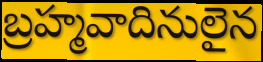
బ్రహ్మవాదినులైన